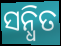
ସନ୍ଧିତ